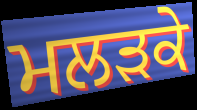
ਮਲੜਕੇ